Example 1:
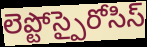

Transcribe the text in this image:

లెప్టోస్పైరోసిస్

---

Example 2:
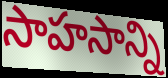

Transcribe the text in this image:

సాహసాన్ని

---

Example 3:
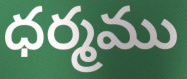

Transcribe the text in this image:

ధర్మము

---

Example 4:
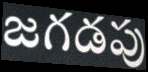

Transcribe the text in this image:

జగడపు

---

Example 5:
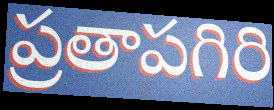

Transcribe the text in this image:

ప్రతాపగిరి